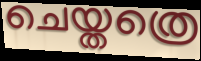
ചെയ്തത്രെ